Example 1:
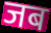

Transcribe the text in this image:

जब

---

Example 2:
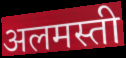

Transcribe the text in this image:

अलमस्ती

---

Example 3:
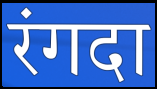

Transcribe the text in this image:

रंगदा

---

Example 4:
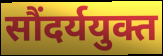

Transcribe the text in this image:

सौंदर्ययुक्त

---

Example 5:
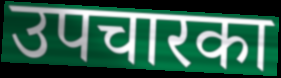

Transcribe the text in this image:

उपचारका